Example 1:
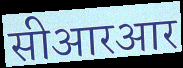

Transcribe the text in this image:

सीआरआर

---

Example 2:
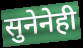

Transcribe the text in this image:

सुनेनेही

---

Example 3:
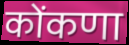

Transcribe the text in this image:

कोंकणा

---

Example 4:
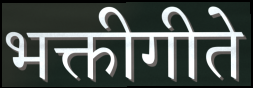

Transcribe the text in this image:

भक्तीगीते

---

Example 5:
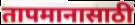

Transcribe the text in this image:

तापमानासाठी